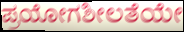
ಪ್ರಯೋಗಶೀಲತೆಯೇ